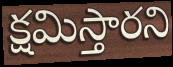
క్షమిస్తారని